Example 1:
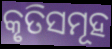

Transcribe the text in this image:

କୃତିସମୂହ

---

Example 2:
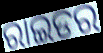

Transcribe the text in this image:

ରାଇଡର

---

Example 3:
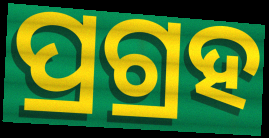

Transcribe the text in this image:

ପ୍ରଗ୍ରହ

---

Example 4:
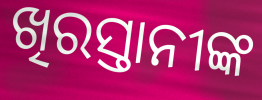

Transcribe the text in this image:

ଖିରସ୍ତାନୀଙ୍କ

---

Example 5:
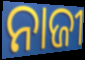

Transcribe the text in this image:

ନାଜୀ